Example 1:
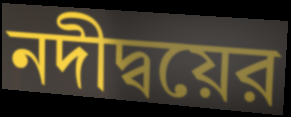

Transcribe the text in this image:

নদীদ্বয়ের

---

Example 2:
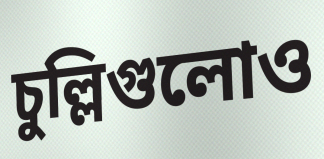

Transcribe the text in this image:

চুল্লিগুলোও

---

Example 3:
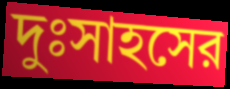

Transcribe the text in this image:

দুঃসাহসের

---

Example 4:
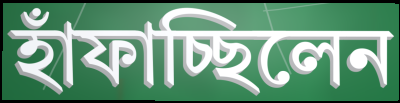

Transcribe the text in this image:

হাঁফাচ্ছিলেন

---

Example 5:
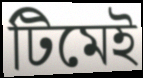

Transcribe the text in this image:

টিমেই